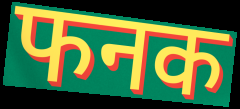
फनक